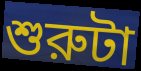
শুরুটা